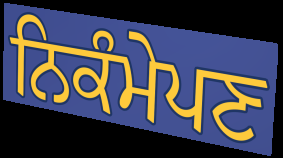
ਨਿਕੰਮੇਪਣ